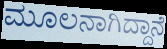
ಮೂಲನಾಗಿದ್ದಾನೆ